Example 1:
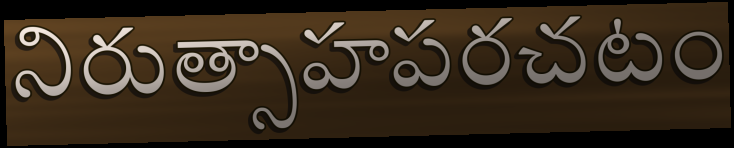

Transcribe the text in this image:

నిరుత్సాహపరచటం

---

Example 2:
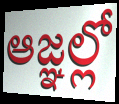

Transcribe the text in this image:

ఆజ్ఞల్లో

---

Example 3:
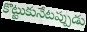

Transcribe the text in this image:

కొట్టుకునేటప్పుడు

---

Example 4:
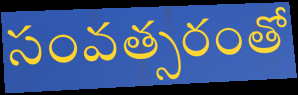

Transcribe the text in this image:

సంవత్సరంతో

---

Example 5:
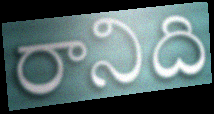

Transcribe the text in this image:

రానిది